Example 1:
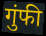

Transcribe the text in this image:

गुंफी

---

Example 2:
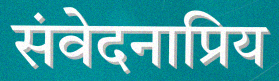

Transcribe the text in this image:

संवेदनाप्रिय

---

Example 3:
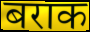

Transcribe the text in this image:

बराक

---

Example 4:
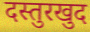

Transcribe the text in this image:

दस्तुरखुद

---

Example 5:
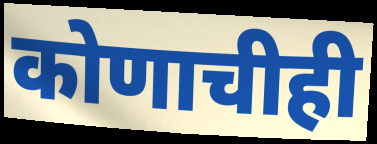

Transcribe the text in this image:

कोणाचीही